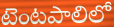
టెంటపాలిలో